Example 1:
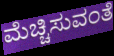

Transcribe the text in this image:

ಮೆಚ್ಚಿಸುವಂತೆ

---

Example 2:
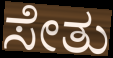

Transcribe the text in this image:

ಸೇತು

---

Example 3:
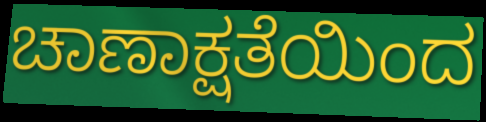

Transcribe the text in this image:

ಚಾಣಾಕ್ಷತೆಯಿಂದ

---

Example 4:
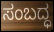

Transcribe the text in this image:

ಸಂಬದ್ಧ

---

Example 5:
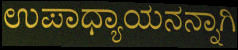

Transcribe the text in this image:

ಉಪಾಧ್ಯಾಯನನ್ನಾಗಿ